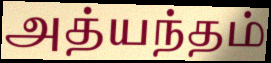
அத்யந்தம்